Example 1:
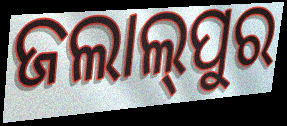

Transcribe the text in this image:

ଜଲାଲ୍‍ପୁର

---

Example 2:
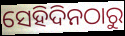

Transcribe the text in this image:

ସେହିଦିନଠାରୁ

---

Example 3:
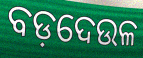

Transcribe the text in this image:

ବଡ଼ଦେଉଳ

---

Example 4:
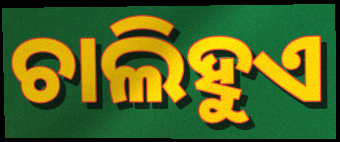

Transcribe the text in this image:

ଚାଲିହୁଏ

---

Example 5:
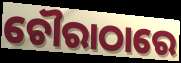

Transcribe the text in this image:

ଚୌରାଠାରେ